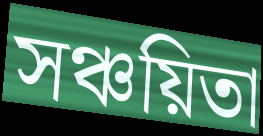
সঞ্চয়িতা